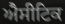
ਐਸੀਟਿਕ